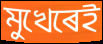
মুখেৰেই